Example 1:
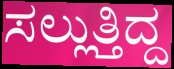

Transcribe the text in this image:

ಸಲ್ಲುತ್ತಿದ್ದ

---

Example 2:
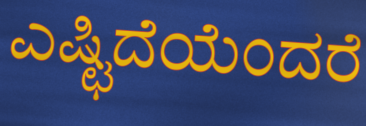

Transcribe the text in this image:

ಎಷ್ಟಿದೆಯೆಂದರೆ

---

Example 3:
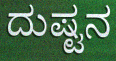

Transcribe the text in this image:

ದುಷ್ಟನ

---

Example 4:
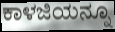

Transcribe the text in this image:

ಕಾಳಜಿಯನ್ನೂ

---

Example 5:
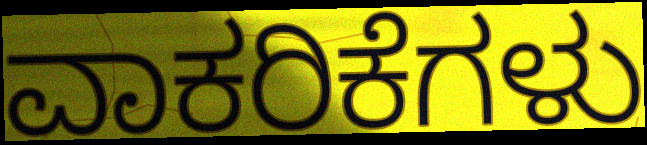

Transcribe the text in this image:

ವಾಕರಿಕೆಗಳು